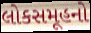
લોકસમૂહનો